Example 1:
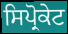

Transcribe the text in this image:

ਸਿਪ੍ਰੋਕੇਟ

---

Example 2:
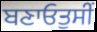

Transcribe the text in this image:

ਬਣਾਓਤੁਸੀਂ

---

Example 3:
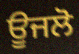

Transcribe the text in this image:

ਊਜਲੋ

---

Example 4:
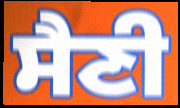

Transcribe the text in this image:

ਸੈਣੀ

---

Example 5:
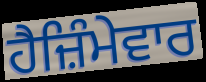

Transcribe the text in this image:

ਹੈਜ਼ਿੰਮੇਵਾਰ